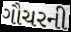
ગૌચરની